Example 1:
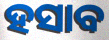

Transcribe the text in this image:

ହସାବ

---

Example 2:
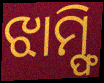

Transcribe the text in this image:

ଝାମ୍ଫି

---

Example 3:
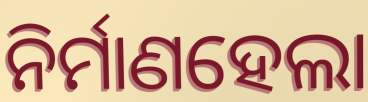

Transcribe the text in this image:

ନିର୍ମାଣହେଲା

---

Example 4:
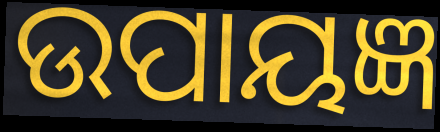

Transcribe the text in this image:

ଉପାୟଜ୍ଞ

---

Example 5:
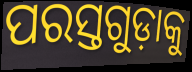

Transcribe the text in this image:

ପରସ୍ତଗୁଡ଼ାକୁ